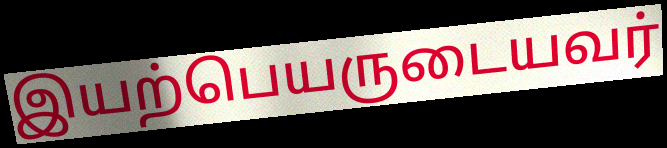
இயற்பெயருடையவர்